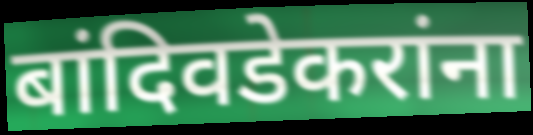
बांदिवडेकरांना